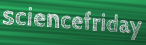
sciencefriday